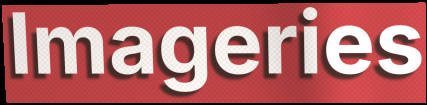
Imageries